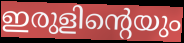
ഇരുളിന്റെയും